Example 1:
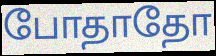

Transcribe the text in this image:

போதாதோ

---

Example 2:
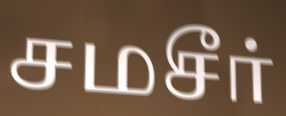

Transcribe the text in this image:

சமசீர்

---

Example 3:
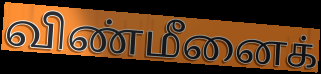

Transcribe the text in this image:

விண்மீனைக்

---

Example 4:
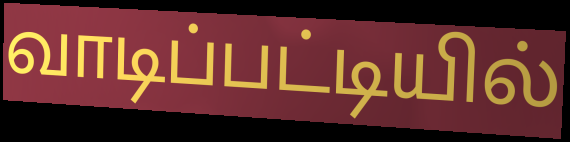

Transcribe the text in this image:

வாடிப்பட்டியில்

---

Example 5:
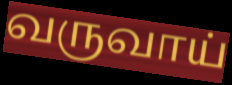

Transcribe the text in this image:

வருவாய்